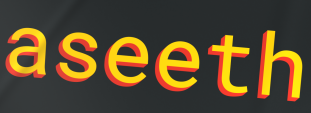
aseeth